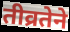
तीव्रतेने